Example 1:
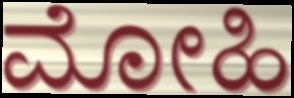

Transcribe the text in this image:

ಮೋಹಿ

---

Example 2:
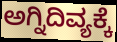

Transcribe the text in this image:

ಅಗ್ನಿದಿವ್ಯಕ್ಕೆ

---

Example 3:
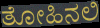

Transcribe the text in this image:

ತೋಹಿನಲಿ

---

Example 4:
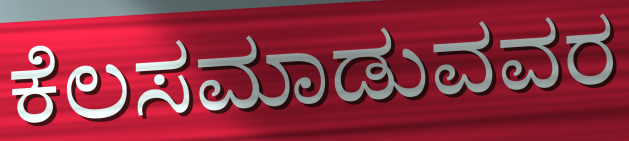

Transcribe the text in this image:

ಕೆಲಸಮಾಡುವವರ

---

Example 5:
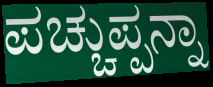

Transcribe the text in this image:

ಪಚ್ಚುಪ್ಪನ್ನಾ